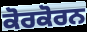
ਕੋਰਕੋਰਨ